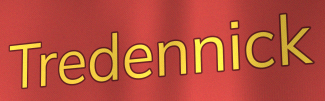
Tredennick